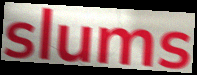
slums